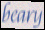
beary